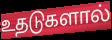
உதடுகளால்